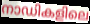
നാഡികളിലെ